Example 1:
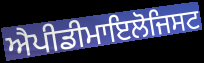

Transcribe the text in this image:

ਐਪੀਡੀਮਾਇਲੋਜਿਸਟ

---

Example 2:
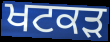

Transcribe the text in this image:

ਖਟਕੜ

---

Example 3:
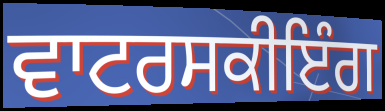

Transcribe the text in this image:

ਵਾਟਰਸਕੀਇੰਗ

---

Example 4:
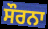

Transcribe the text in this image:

ਸੌਰਨਾ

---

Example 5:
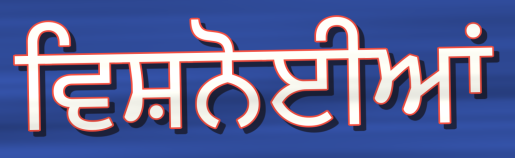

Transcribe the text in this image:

ਵਿਸ਼ਨੋਈਆਂ